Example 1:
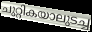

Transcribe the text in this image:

ചുറ്റികയാലുടച്ച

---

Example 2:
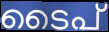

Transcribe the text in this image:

ടൈപ്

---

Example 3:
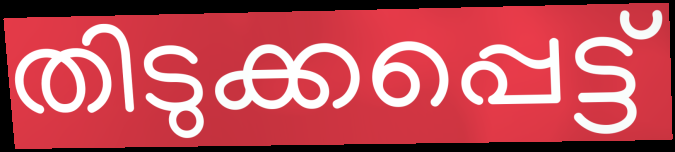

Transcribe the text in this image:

തിടുക്കപ്പെട്ട്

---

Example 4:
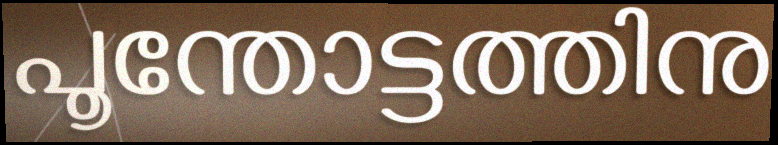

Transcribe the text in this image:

പൂന്തോട്ടത്തിനു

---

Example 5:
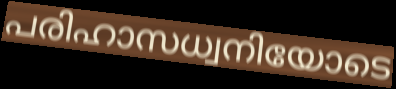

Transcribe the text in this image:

പരിഹാസധ്വനിയോടെ